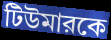
টিউমারকে